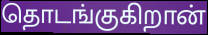
தொடங்குகிறான்